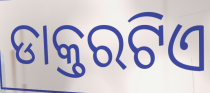
ଡାକ୍ତରଟିଏ